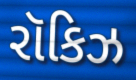
રૉકિઝ